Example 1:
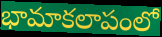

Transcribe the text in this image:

భామాకలాపంలో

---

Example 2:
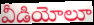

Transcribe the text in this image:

వీడియోలూ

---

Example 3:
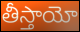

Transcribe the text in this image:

తీస్తాయో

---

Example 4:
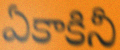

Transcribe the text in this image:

ఏకాకినీ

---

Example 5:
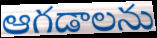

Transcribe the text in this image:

ఆగడాలను